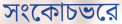
সংকোচভরে